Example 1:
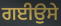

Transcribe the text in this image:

ਗਈਉਸੇ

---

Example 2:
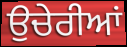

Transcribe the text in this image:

ਉਚੇਰੀਆਂ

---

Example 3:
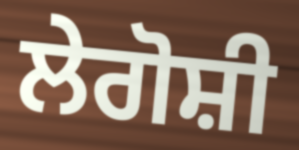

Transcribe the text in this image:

ਲੇਗੋਸ਼ੀ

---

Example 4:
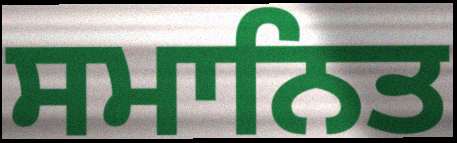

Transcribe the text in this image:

ਸਮਾਨਿਤ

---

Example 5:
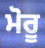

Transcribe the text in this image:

ਮੋਰੂ